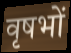
वृषभों